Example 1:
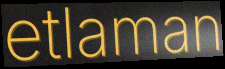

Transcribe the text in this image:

etlaman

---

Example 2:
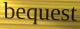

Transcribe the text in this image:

bequest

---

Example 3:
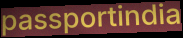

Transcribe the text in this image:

passportindia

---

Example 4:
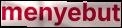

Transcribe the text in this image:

menyebut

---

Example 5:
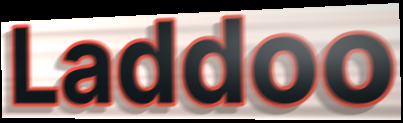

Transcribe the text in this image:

Laddoo